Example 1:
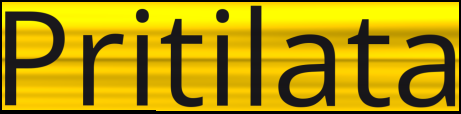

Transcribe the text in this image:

Pritilata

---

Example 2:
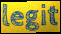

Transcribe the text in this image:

legit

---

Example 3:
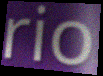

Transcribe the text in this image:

rio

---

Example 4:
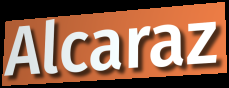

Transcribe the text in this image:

Alcaraz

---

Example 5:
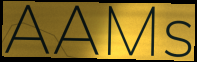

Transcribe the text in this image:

AAMs